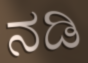
ನಡಿ